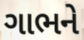
ગાભને